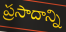
ప్రసాదాన్ని